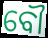
ବୌ